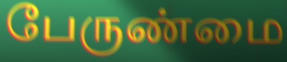
பேருண்மை